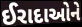
ઈરાદાઓને